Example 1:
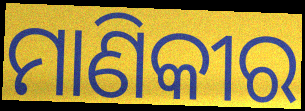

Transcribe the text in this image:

ମାଣିକୀର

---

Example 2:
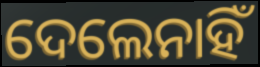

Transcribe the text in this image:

ଦେଲେନାହିଁ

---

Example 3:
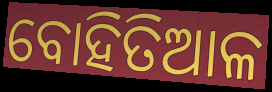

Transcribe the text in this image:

ବୋହିତିଆଳ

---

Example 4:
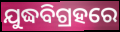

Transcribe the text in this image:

ଯୁଦ୍ଧବିଗ୍ରହରେ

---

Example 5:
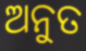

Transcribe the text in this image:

ଅନୁତ